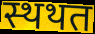
स्थथत